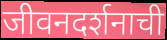
जीवनदर्शनाची